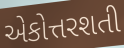
એકોત્તરશતી